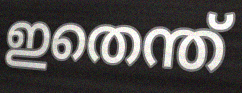
ഇതെന്ത്